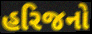
હરિજનો